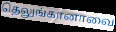
தெலுங்கானாவை